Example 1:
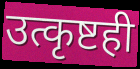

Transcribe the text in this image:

उत्कृष्टही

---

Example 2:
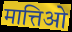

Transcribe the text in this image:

मात्तिओ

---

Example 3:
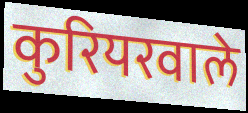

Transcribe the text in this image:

कुरियरवाले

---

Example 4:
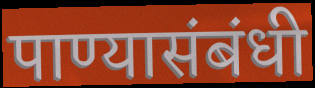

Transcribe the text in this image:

पाण्यासंबंधी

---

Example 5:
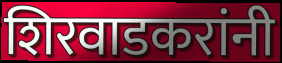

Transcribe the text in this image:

शिरवाडकरांनी